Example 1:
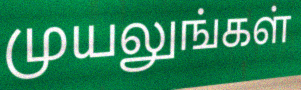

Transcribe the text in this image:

முயலுங்கள்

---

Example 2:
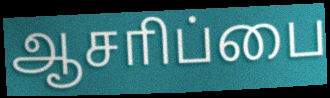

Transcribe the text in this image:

ஆசரிப்பை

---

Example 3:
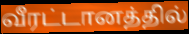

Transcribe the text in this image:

வீரட்டானத்தில்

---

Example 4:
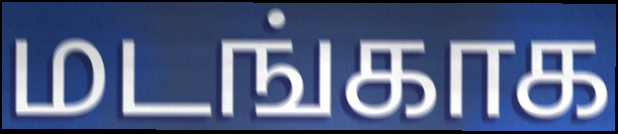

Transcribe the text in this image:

மடங்காக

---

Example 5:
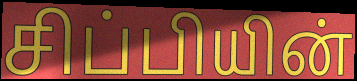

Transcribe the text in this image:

சிப்பியின்